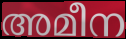
അമീന